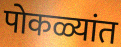
पोकळ्यांत